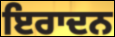
ਇਰਾਦਨ